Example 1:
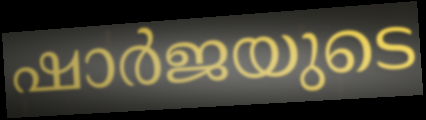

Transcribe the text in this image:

ഷാർജയുടെ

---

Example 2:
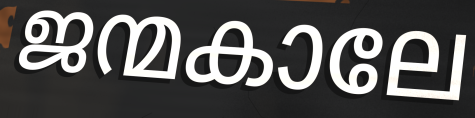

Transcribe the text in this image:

ജന്മകാലേ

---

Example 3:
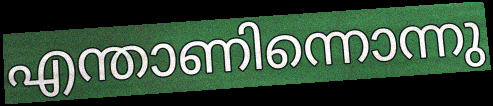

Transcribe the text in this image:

എന്താണിന്നൊന്നു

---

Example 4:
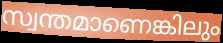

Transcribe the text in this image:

സ്വന്തമാണെങ്കിലും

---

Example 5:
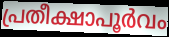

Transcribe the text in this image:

പ്രതീക്ഷാപൂർവം